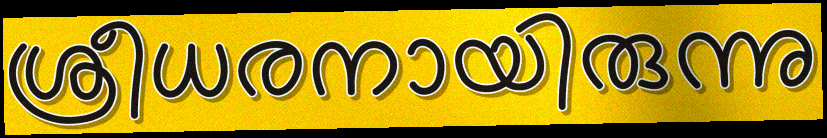
ശ്രീധരനായിരുന്നു